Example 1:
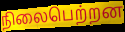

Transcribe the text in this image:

நிலைபெற்றன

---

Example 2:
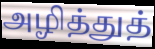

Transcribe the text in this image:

அழித்துத்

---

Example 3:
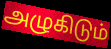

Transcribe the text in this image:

அழுகிடும்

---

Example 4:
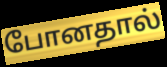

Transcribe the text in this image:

போனதால்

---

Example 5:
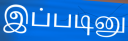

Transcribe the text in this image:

இப்படினு